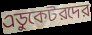
এডুকেটরদের